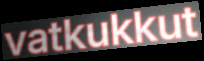
vatkukkut